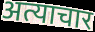
अत्याचार